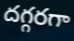
దగ్గరగా